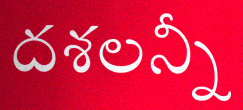
దశలన్నీ